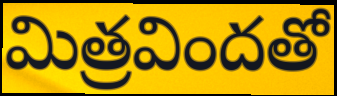
మిత్రవిందతో